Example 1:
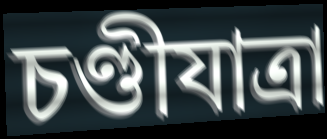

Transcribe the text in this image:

চণ্ডীযাত্রা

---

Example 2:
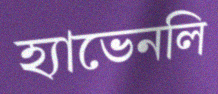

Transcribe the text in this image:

হ্যাভেনলি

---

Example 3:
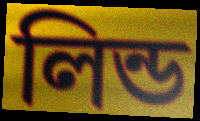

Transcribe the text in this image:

লিন্ড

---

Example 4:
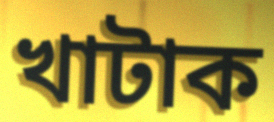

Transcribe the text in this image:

খাটাক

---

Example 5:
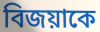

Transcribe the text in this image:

বিজয়াকে